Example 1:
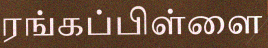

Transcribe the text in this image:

ரங்கப்பிள்ளை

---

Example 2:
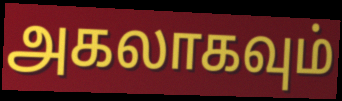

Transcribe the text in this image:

அகலாகவும்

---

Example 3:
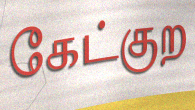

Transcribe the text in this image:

கேட்குற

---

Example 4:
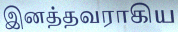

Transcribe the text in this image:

இனத்தவராகிய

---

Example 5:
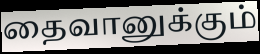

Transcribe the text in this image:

தைவானுக்கும்